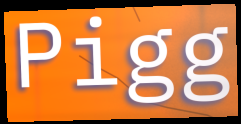
Pigg